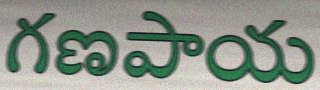
గణపాయ